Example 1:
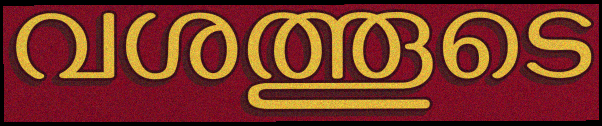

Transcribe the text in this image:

വശത്തൂടെ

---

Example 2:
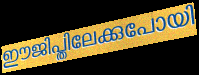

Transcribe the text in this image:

ഈജിപ്തിലേക്കുപോയി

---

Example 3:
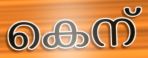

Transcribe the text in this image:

കെന്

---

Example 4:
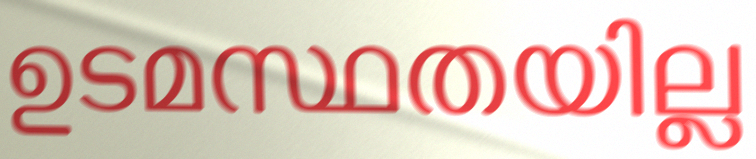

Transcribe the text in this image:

ഉടമസ്ഥതയില്ല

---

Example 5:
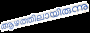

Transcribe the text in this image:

ആഴത്തിലായിരുന്നു